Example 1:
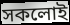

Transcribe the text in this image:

সকলোই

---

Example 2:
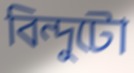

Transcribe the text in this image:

বিন্দুটো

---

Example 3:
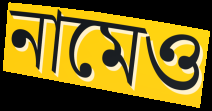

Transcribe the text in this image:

নামেও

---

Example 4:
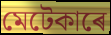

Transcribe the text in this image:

মেটেকাৰে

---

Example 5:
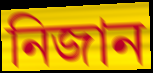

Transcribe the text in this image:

নিজান